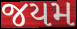
જયમ